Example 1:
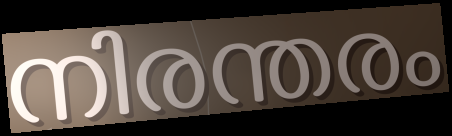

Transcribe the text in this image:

നിരന്തരം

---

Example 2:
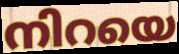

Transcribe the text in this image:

നിറയെ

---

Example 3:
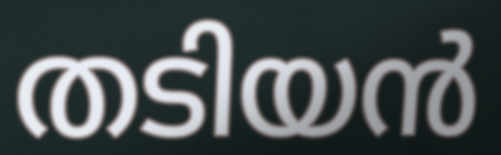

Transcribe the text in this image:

തടിയൻ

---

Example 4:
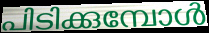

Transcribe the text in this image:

പിടിക്കുമ്പോൾ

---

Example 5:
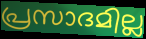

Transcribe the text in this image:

പ്രസാദമില്ല